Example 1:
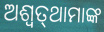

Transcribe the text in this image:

ଅଶ୍ୱତ୍‌ଥାମାଙ୍କ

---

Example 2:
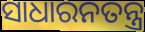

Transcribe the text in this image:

ସାଧାରନତନ୍ତ୍ର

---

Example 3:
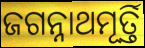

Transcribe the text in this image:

ଜଗନ୍ନାଥମୂର୍ତ୍ତି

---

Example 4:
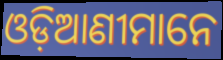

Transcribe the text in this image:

ଓଡ଼ିଆଣୀମାନେ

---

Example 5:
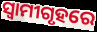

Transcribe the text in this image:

ସ୍ଵାମୀଗୃହରେ